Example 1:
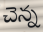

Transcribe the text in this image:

చెన్న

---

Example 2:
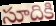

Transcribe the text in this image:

సూదికి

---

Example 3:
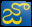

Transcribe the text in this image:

జొ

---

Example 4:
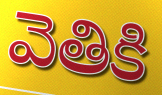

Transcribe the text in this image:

వెతికి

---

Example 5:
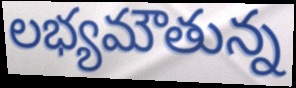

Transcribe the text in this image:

లభ్యమౌతున్న